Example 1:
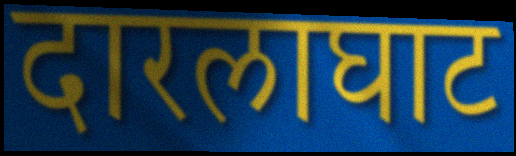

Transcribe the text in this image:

दारलाघाट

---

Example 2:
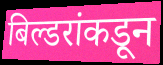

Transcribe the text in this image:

बिल्डरांकडून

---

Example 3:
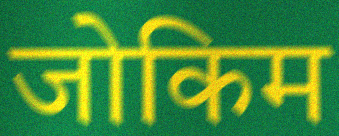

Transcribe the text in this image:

जोकिम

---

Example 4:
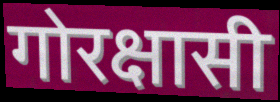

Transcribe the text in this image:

गोरक्षासी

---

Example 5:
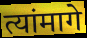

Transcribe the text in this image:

त्यांमागे